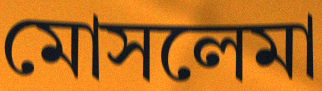
মোসলেমা